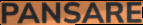
PANSARE